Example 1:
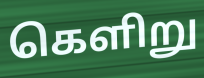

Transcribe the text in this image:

கெளிறு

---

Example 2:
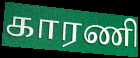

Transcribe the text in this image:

காரணி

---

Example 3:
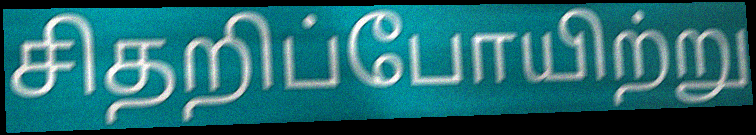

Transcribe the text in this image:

சிதறிப்போயிற்று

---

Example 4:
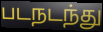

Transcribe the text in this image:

படநடந்து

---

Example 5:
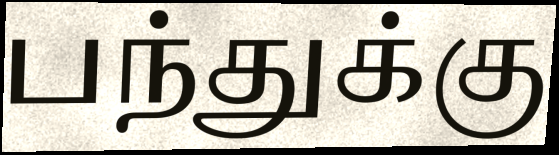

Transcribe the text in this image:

பந்துக்கு